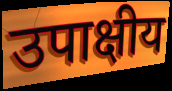
उपाक्षीय